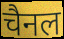
चैनल